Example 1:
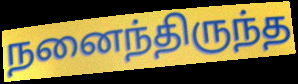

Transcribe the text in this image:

நனைந்திருந்த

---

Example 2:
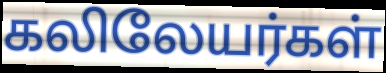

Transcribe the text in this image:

கலிலேயர்கள்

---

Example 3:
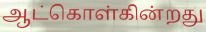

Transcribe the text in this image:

ஆட்கொள்கின்றது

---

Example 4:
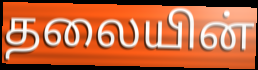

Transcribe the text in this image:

தலையின்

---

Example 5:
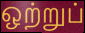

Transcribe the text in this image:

ஒற்றுப்